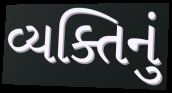
વ્યક્તિનું